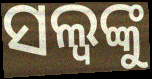
ସଲ୍ୱଙ୍କୁ